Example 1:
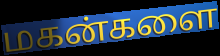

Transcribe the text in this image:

மகன்களை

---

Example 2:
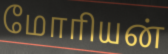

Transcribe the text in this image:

மோரியன்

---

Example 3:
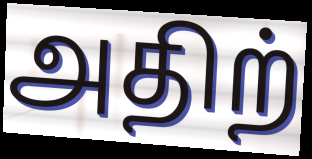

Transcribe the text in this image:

அதிற்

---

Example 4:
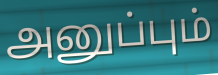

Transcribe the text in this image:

அனுப்பும்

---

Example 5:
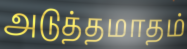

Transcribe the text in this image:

அடுத்தமாதம்